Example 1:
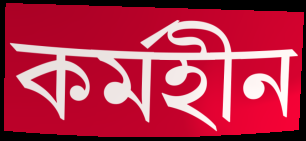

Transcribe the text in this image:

কৰ্মহীন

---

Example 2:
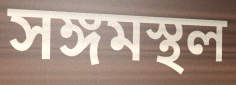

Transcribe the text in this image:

সঙ্গমস্থল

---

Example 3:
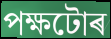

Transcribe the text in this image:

পক্ষটোৰ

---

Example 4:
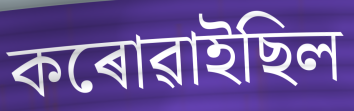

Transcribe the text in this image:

কৰোৱাইছিল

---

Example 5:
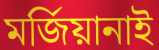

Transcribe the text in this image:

মৰ্জিয়ানাই